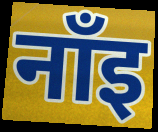
नाँइ